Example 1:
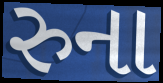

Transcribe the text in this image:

રુના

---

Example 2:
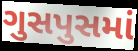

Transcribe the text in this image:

ગુસપુસમાં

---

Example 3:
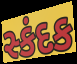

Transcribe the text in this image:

સ્કંદક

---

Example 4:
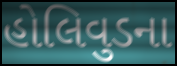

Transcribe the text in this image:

હોલિવુડના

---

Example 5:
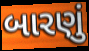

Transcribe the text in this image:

બારણું